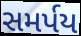
સમર્પય